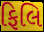
ફિલિ